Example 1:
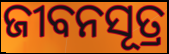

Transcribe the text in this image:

ଜୀବନସୂତ୍ର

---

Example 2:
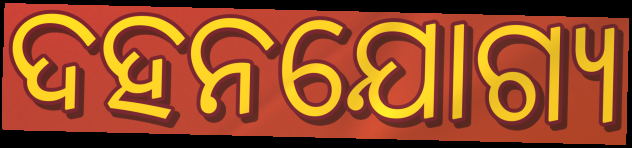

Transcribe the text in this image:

ଦହନଯୋଗ୍ୟ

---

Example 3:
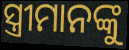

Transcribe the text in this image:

ସ୍ତ୍ରୀମାନଙ୍କୁ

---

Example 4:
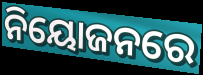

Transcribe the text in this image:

ନିୟୋଜନରେ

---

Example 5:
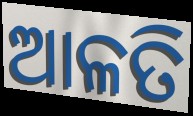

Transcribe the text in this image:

ଆଳତି